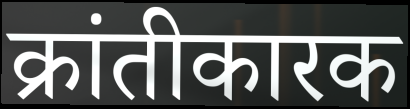
क्रांतीकारक